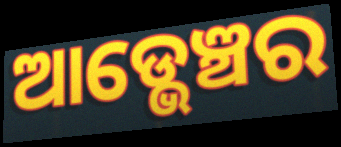
ଆଡ୍ଭେଞ୍ଚର